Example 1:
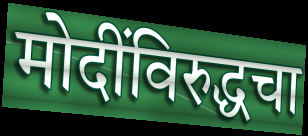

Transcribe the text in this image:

मोदींविरुद्धचा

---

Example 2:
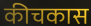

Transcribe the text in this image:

कीचकास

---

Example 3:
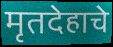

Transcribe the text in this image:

मृतदेहाचे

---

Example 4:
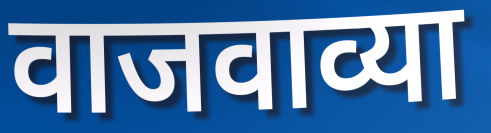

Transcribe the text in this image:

वाजवाव्या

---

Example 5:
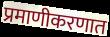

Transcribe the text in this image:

प्रमाणीकरणात